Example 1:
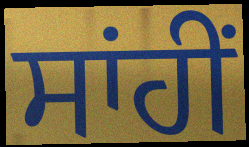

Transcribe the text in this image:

ਸਾਂਹੀਂ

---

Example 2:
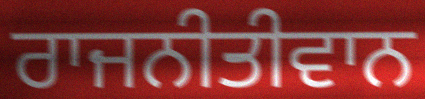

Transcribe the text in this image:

ਰਾਜਨੀਤੀਵਾਨ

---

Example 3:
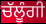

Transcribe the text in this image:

ਚੱਲੂੰਗੀ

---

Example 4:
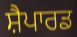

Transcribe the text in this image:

ਸ਼ੈਪਾਰਡ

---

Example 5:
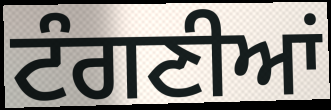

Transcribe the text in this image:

ਟੰਗਣੀਆਂ